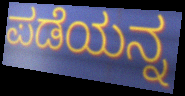
ಪಡೆಯನ್ನ